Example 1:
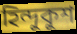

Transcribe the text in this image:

হিন্দুকুশ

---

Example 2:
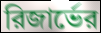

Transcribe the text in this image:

রিজার্ভের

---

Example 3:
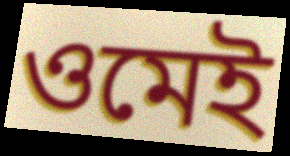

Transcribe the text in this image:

ওমেই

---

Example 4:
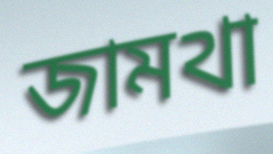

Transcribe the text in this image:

জামথা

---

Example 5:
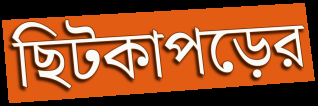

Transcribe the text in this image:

ছিটকাপড়ের